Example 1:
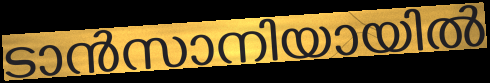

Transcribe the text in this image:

ടാൻസാനിയായിൽ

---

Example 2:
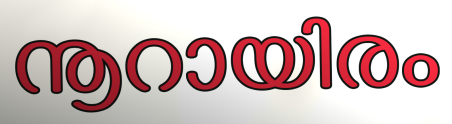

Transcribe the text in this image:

നൂറായിരം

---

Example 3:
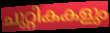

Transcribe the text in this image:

ചുറ്റികകളും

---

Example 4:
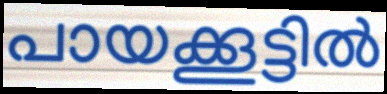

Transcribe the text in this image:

പായക്കൂട്ടിൽ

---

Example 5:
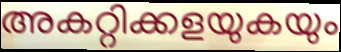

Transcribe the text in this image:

അകറ്റിക്കളയുകയും